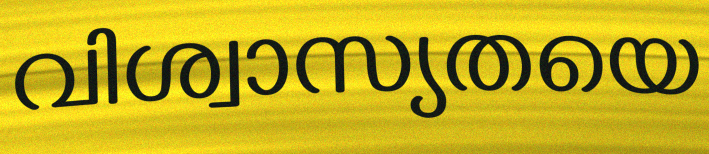
വിശ്വാസ്യതയെ